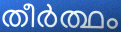
തീർത്ഥം